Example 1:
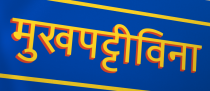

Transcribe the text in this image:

मुखपट्टीविना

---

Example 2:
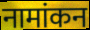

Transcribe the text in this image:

नामांकन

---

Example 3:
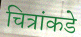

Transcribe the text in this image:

चित्रांकडे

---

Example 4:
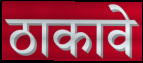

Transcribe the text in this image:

ठाकावे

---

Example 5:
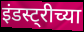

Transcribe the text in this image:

इंडस्ट्रीच्या